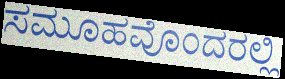
ಸಮೂಹವೊಂದರಲ್ಲಿ